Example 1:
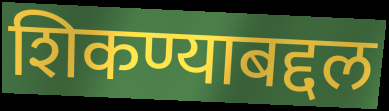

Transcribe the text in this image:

शिकण्याबद्दल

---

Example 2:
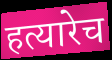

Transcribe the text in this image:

हत्यारेच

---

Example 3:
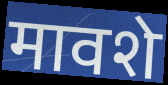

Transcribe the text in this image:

मावशे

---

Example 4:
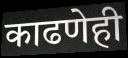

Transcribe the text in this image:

काढणेही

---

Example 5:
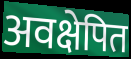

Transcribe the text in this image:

अवक्षेपित